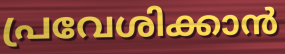
പ്രവേശിക്കാൻ